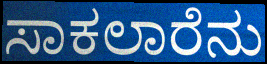
ಸಾಕಲಾರೆನು